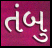
તંબુ